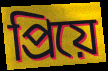
প্রিয়ে